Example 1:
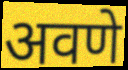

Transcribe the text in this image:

अवणे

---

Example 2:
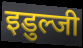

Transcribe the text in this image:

इडुल्जी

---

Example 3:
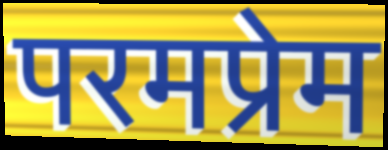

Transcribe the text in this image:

परमप्रेम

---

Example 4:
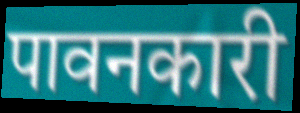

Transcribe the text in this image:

पावनकारी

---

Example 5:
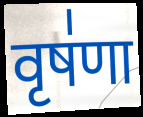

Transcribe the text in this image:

वृष॑णा